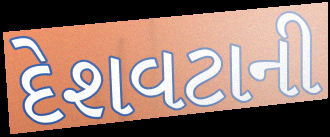
દેશવટાની